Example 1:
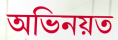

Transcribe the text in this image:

অভিনয়ত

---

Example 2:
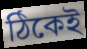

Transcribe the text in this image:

ঠিকেই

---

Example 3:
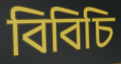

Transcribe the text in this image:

বিবিচি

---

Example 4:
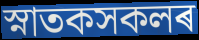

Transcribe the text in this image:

স্নাতকসকলৰ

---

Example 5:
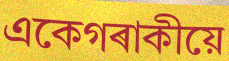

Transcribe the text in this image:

একেগৰাকীয়ে